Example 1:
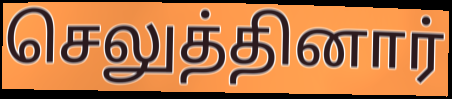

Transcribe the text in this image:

செலுத்தினார்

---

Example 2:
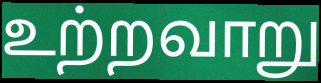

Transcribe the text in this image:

உற்றவாறு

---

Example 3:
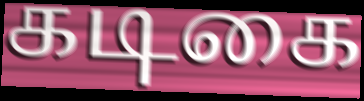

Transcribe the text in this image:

கடிகை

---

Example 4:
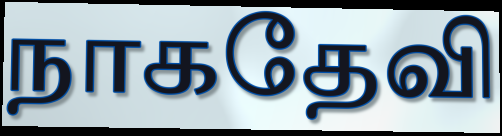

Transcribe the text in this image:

நாகதேவி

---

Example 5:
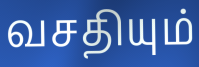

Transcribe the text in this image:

வசதியும்